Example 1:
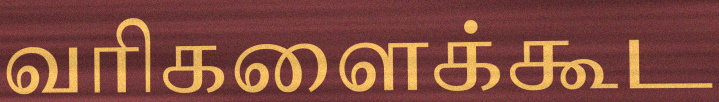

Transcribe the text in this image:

வரிகளைக்கூட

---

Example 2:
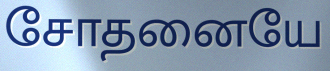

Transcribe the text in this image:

சோதனையே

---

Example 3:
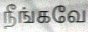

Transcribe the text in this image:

நீங்கவே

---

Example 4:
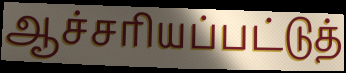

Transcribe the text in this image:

ஆச்சரியப்பட்டுத்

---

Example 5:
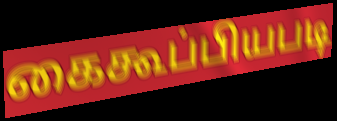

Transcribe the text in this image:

கைகூப்பியபடி